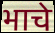
भाचे